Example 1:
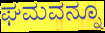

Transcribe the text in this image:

ಘಮವನ್ನೂ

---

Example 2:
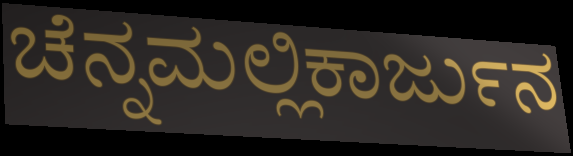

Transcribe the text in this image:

ಚೆನ್ನಮಲ್ಲಿಕಾರ್ಜುನ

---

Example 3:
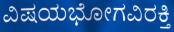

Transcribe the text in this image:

ವಿಷಯಭೋಗವಿರಕ್ತಿ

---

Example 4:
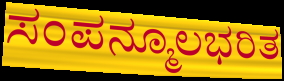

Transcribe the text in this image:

ಸಂಪನ್ಮೂಲಭರಿತ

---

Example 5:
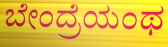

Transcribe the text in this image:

ಬೇಂದ್ರೆಯಂಥ